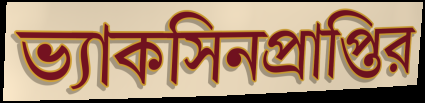
ভ্যাকসিনপ্রাপ্তির